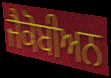
ਜੈਕੋਬੀਅਨ